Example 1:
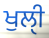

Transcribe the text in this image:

ਖੁਲੀੑ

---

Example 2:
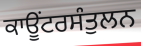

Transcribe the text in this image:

ਕਾਊਂਟਰਸੰਤੁਲਨ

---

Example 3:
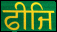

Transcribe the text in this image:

ਫੀਜਿ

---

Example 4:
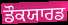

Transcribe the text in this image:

ਡੌਕਯਾਰਡ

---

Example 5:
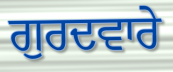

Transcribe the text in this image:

ਗੁਰਦਵਾਰੇ